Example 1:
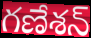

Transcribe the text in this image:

గణేశన్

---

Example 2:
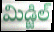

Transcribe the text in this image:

మిడ్జిల్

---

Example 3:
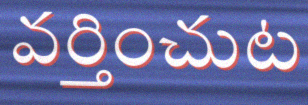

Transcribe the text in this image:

వర్తించుట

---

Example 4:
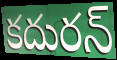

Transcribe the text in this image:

కదురన్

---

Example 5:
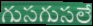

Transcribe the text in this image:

గుసగుసలే